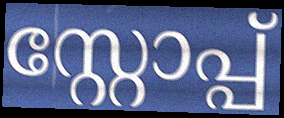
സ്റ്റോപ്പ്